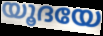
യൂദയേ